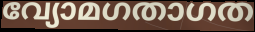
വ്യോമഗതാഗത